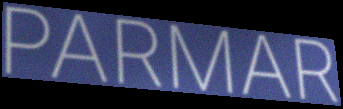
PARMAR